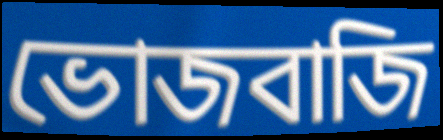
ভোজবাজি